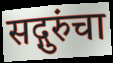
सद्गुरुंचा